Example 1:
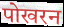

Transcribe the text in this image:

पोखरन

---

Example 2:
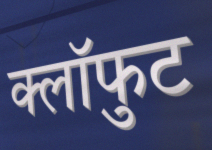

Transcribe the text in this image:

क्लॉफुट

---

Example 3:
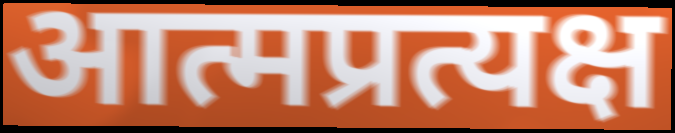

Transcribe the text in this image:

आत्मप्रत्यक्ष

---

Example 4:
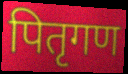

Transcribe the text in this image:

पितृगण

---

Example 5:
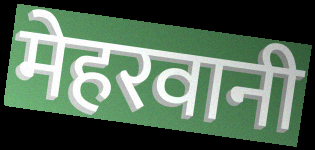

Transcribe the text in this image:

मेहरवानी